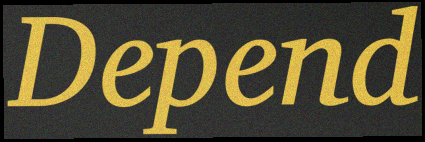
Depend